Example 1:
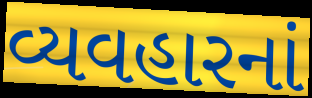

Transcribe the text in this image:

વ્યવહારનાં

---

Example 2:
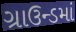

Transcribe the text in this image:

ગ્રાઉન્ડમાં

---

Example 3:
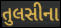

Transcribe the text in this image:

તુલસીના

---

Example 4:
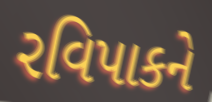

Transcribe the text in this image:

રવિપાકને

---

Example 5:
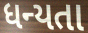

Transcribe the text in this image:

ધન્યતા